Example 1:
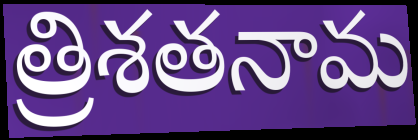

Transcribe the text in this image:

త్రిశతనామ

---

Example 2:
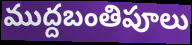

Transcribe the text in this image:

ముద్దబంతిపూలు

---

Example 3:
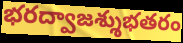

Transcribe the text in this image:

భరద్వాజశ్శుభతరం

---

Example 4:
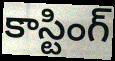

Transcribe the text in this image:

కాస్టింగ్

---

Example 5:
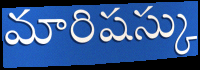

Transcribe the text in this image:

మారిషస్కు